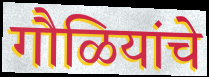
गौळियांचे